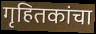
गृहितकांचा